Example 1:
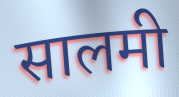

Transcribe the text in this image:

सालमी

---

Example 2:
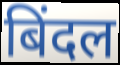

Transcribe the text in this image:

बिंदल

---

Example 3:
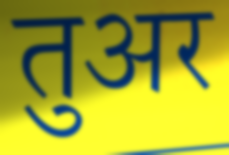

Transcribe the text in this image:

तुअर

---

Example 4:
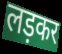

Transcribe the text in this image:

लड़कर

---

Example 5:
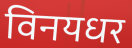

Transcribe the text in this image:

विनयधर